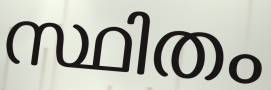
സ്ഥിതം